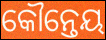
କୌନ୍ତେୟ